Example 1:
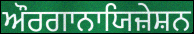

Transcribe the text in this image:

ਔਰਗਾਨਾਯਿਜ਼ੇਸ਼ਨ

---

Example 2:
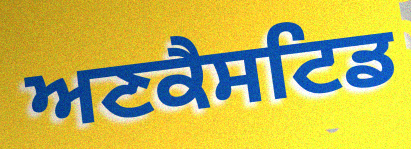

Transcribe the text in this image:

ਅਣਕੈਸਟਿਡ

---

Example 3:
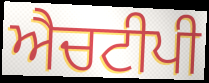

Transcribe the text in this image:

ਐਚਟੀਪੀ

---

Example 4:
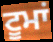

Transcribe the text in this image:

ਟੂਮਾਂ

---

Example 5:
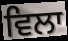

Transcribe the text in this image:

ਵਿਲਾ